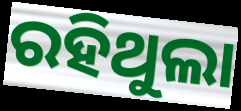
ରହିଥୁଲା